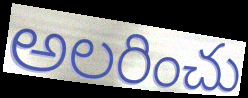
అలరించు